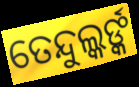
ତେନ୍ଦୁଲ୍କର୍ଙ୍କ